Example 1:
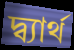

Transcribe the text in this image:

দ্ব্যার্থ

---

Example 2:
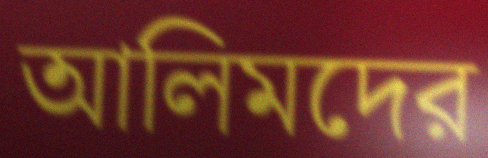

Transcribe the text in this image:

আলিমদের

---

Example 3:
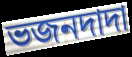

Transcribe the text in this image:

ভজনদাদা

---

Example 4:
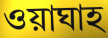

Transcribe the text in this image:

ওয়াঘাহ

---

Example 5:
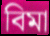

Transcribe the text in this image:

বিমা